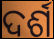
ଦର୍ଶ